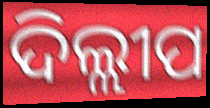
ଦିଲ୍ଲୀପ